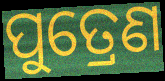
ପୁତ୍ରେଣ